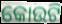
କୋଉଟି